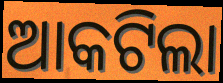
ଆକଟିଲା